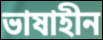
ভাষাহীন